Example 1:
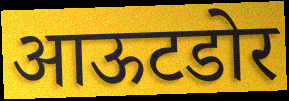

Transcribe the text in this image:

आऊटडोर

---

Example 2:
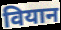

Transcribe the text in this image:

वियान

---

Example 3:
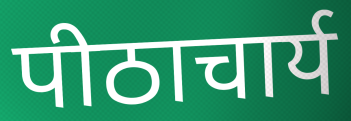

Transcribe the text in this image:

पीठाचार्य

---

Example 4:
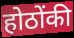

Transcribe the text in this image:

होठोंकी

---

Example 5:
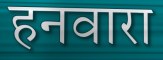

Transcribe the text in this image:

हनवारा